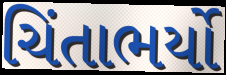
ચિંતાભર્યો